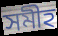
সমীহ